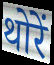
थोरें